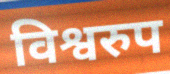
विश्वरुप